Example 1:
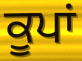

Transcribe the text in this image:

ਕੂਪਾਂ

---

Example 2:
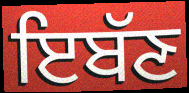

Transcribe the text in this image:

ਇਬੱਣ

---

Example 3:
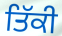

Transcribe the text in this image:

ਤਿੱਕੀ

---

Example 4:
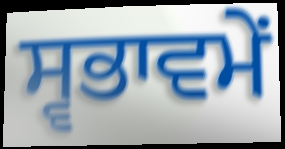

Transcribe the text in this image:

ਸ੍ਵਭਾਵਮੇਂ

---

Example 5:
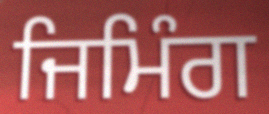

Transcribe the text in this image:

ਜਿਮਿੰਗ